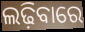
ଲଢ଼ିବାରେ